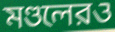
মণ্ডলেরও